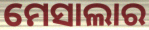
ମେସାଲାର